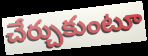
చేర్చుకుంటూ